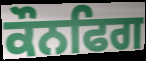
ਕੌਨਫਿਗ